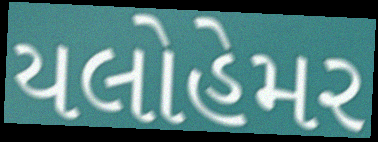
યલોહેમર